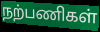
நற்பணிகள்